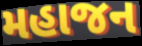
મહાજન